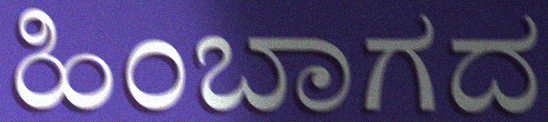
ಹಿಂಬಾಗದ